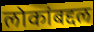
लोकांबद्दल